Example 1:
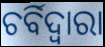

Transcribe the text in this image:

ଚର୍ବିଦ୍ଵାରା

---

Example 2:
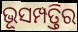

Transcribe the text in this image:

ଭୂସମ୍ପତ୍ତିର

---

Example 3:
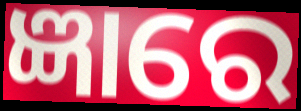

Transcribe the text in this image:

ଜ୍ଞାରେ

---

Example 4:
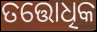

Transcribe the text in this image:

ତତ୍ତୋଧିକ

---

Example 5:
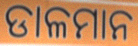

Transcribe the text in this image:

ଡାଳମାନ